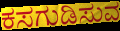
ಕಸಗುಡಿಸುವ